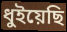
ধুইয়েছি